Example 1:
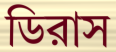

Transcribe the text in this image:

ডিরাস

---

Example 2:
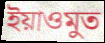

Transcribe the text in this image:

ইয়াওমুত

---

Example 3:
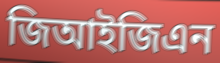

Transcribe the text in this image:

জিআইজিএন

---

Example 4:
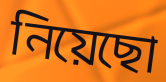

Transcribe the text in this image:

নিয়েছো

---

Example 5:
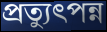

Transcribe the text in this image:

প্রত্যুৎপন্ন